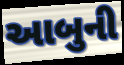
આબુની